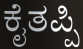
ಕೈತಪ್ಪಿ